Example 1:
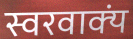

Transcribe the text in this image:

स्वरवाक्यं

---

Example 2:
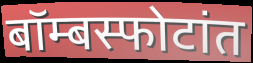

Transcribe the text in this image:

बॉम्बस्फोटांत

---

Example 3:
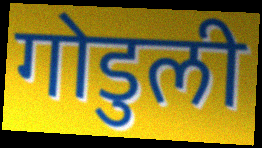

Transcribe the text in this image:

गोडुली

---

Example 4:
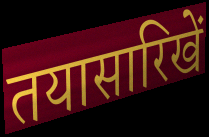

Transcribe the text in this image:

तयासारिखें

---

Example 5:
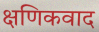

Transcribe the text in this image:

क्षणिकवाद